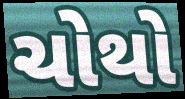
ચોથો